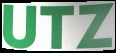
UTZ